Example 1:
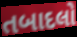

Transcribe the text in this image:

તબાદલો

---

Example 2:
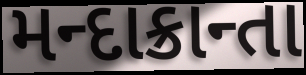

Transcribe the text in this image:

મન્દાક્રાન્તા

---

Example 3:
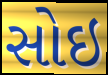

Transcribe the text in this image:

સોઇ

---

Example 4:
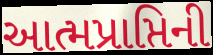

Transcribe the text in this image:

આત્મપ્રાપ્તિની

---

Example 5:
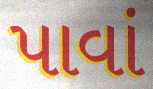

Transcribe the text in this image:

પાવાં